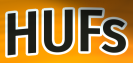
HUFs